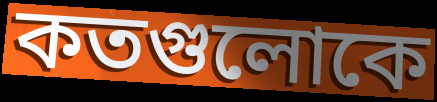
কতগুলোকে